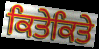
ਕਿਤੇਕਿਤੇ